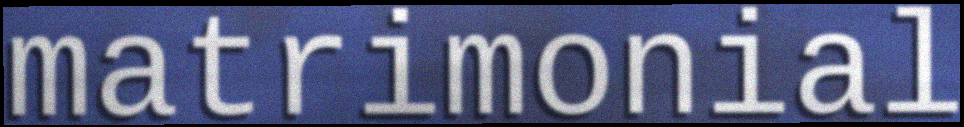
matrimonial